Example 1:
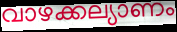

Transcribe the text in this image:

വാഴക്കല്യാണം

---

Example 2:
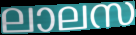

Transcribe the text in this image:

ലാലസ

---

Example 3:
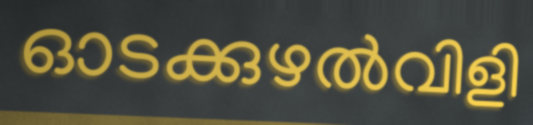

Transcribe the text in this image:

ഓടക്കുഴൽവിളി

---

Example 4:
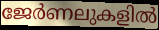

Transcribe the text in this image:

ജേർണലുകളിൽ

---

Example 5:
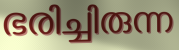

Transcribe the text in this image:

ഭരിച്ചിരുന്ന